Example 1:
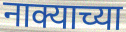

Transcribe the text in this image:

नाक्याच्या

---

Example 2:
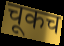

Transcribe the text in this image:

चूकच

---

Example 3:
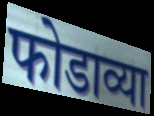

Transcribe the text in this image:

फोडाव्या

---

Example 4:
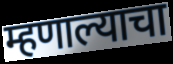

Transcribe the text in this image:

म्हणाल्याचा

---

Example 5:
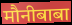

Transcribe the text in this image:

मौनीबाबा